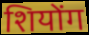
शियोंग